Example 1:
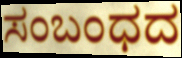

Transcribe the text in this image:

ಸಂಬಂಧದ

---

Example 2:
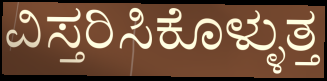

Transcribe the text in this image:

ವಿಸ್ತರಿಸಿಕೊಳ್ಳುತ್ತ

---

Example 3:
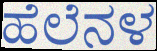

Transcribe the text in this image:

ಹೆಲೆನಳ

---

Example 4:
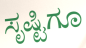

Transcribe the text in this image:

ಸೃಷ್ಟಿಗೂ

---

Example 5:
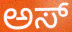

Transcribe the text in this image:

ಅಸ್